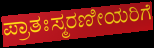
ಪ್ರಾತಃಸ್ಮರಣೀಯರಿಗೆ